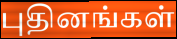
புதினங்கள்